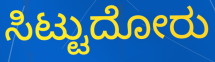
ಸಿಟ್ಟುದೋರು